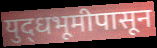
युद्धभूमीपासून